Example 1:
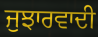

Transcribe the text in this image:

ਜੁਝਾਰਵਾਦੀ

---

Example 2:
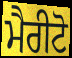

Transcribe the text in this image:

ਮੈਰੀਟੋ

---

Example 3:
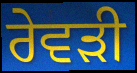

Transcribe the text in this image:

ਰੇਵੜੀ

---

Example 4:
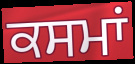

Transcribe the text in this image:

ਕਸਮਾਂ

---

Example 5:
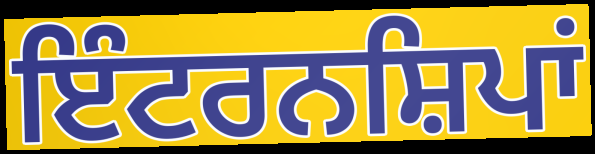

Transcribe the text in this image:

ਇੰਟਰਨਸ਼ਿਪਾਂ